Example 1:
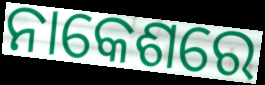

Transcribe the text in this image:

ନାକେଶରେ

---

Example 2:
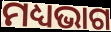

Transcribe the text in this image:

ମଧ୍ୟଭାଗ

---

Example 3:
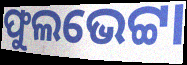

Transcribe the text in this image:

ଫୁଲଭେଟ୍ଟା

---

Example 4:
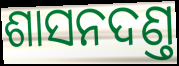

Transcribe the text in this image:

ଶାସନଦଣ୍ତ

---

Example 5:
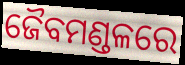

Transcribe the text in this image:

ଜୈବମଣ୍ଡଳରେ